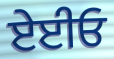
ਏਈਓ